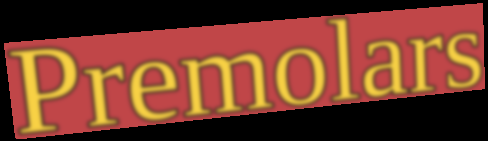
Premolars